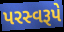
પરસ્વરૂપે